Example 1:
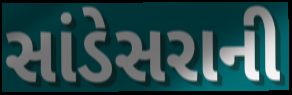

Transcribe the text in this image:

સાંડેસરાની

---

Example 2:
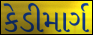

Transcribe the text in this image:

કેડીમાર્ગ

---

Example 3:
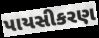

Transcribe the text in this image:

પાયસીકરણ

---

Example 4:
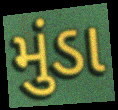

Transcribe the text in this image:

મુંડા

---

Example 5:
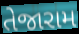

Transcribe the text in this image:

તેજારામ